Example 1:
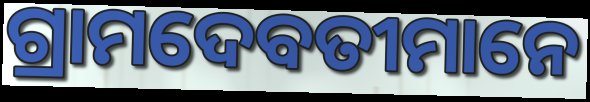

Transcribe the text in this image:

ଗ୍ରାମଦେବତୀମାନେ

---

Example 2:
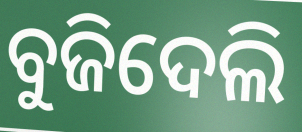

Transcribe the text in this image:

ବୁଜିଦେଲି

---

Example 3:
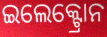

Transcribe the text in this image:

ଇଲେକ୍ଟ୍ରୋନ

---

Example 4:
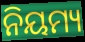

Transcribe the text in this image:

ନିୟମ୍ୟ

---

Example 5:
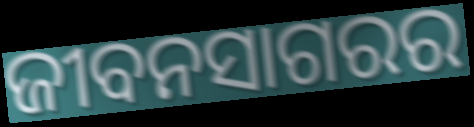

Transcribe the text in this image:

ଜୀବନସାଗରର